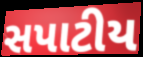
સપાટીય